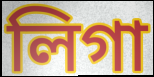
লিগা